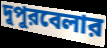
দুপুরবেলার